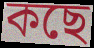
কছে